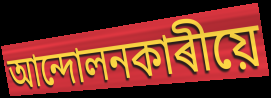
আন্দোলনকাৰীয়ে